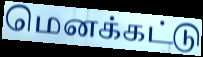
மெனக்கட்டு